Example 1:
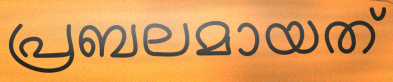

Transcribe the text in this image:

പ്രബലമായത്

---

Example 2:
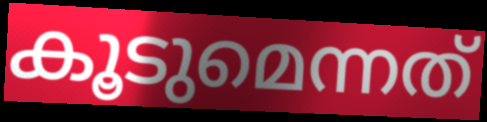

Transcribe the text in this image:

കൂടുമെന്നത്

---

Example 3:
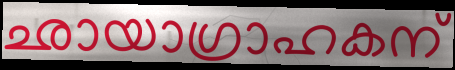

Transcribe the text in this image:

ഛായാഗ്രാഹകന്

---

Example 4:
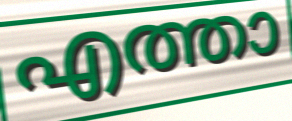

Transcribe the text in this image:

എത്താ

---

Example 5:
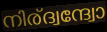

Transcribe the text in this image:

നിര്ദ്വന്ദ്വോ